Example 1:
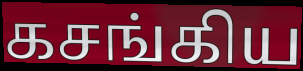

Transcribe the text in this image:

கசங்கிய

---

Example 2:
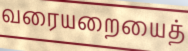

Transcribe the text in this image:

வரையறையைத்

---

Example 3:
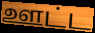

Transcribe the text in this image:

ஊட்ட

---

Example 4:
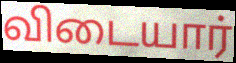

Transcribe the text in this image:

விடையார்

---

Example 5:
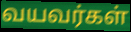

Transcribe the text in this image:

வயவர்கள்